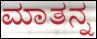
ಮಾತನ್ನ